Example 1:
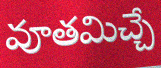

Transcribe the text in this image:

వూతమిచ్చే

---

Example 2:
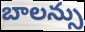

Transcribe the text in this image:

బాలన్సు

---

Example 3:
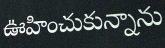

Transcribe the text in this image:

ఊహించుకున్నాను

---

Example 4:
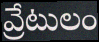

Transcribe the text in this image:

వ్రేటులం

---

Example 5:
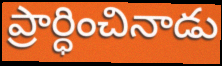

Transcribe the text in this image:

ప్రార్ధించినాడు